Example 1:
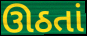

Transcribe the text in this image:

ઊઠતાં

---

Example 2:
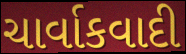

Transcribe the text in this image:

ચાર્વાકવાદી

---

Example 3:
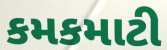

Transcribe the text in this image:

કમકમાટી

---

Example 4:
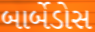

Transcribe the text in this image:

બાર્બેડોસ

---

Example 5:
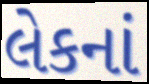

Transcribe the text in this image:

લેકનાં